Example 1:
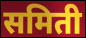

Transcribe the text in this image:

समिती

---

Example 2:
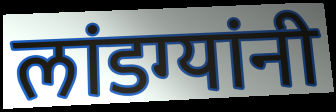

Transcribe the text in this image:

लांडग्यांनी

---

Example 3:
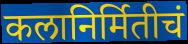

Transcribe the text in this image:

कलानिर्मितीचं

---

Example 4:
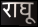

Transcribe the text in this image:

राघू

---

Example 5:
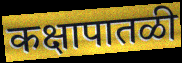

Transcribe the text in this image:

कक्षापातळी